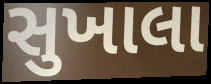
સુખાલા